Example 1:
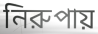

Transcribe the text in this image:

নিরুপায়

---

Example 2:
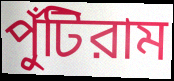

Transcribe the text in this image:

পুঁটিরাম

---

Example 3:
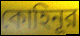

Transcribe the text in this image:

কোহিনূর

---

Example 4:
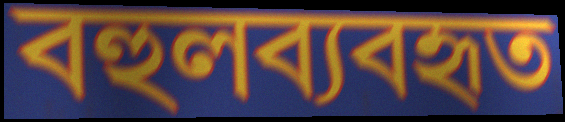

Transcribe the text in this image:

বহুলব্যবহৃত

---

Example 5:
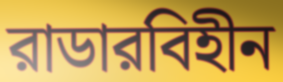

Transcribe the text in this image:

রাডারবিহীন